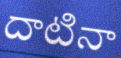
దాటినా